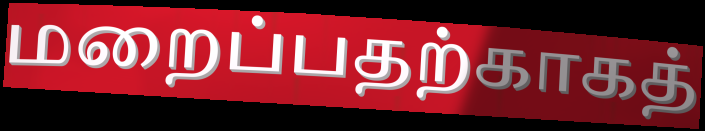
மறைப்பதற்காகத்